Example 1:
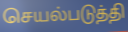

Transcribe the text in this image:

செயல்படுத்தி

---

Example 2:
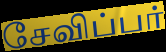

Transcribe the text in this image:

சேவிப்பர்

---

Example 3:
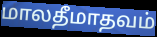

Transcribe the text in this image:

மாலதீமாதவம்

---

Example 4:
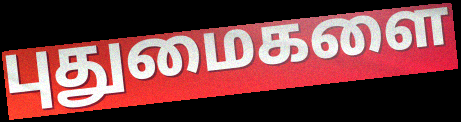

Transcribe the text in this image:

புதுமைகளை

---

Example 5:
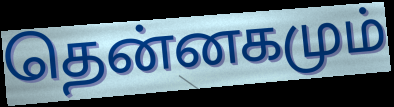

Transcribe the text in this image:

தென்னகமும்